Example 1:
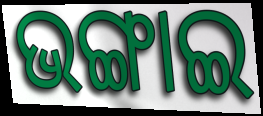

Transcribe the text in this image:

ଭଙ୍ଗାଇ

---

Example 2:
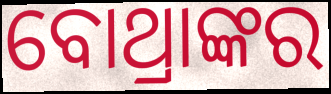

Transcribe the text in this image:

ବୋଥ୍ରାଙ୍କର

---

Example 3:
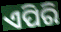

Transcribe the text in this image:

ଏପିରି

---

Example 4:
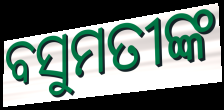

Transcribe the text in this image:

ବସୁମତୀଙ୍କ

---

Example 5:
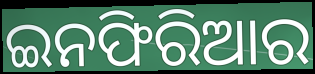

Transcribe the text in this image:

ଇନଫିରିଆର